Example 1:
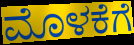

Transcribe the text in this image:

ಮೊಳಕೆಗೆ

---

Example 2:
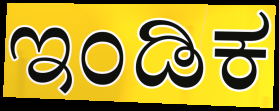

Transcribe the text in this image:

ಇಂಡಿಕ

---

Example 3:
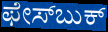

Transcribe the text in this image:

ಫೇಸ್‌ಬುಕ್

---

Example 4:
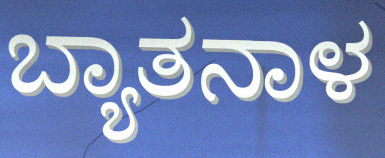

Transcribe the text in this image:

ಬ್ಯಾತನಾಳ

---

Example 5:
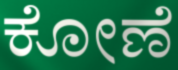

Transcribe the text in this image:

ಕೋಣೆ